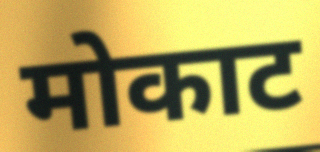
मोकाट